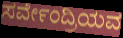
ಸರ್ವೇಂದ್ರಿಯವ